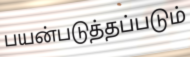
பயன்படுத்தப்படும்